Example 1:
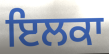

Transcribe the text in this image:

ਇਲਕਾ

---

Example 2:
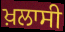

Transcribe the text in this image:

ਖ਼ਲਾਸੀ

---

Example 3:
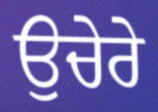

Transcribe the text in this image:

ਉਚੇਰੇ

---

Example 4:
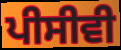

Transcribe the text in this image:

ਪੀਸੀਵੀ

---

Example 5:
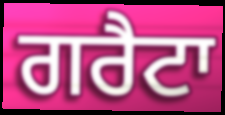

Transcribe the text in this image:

ਗਰੈਟਾ